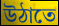
উঠাতে